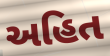
અહિત